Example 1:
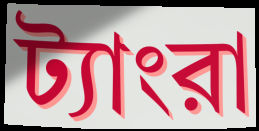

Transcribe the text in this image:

ট্যাংরা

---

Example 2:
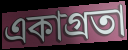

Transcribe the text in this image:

একাগ্রতা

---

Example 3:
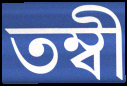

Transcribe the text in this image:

তম্বী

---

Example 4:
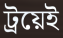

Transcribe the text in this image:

ট্রয়েই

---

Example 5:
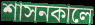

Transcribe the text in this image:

শাসনকালে